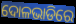
ଦୋଳଭାଡିରେ